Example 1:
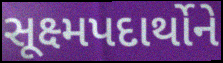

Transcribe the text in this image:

સૂક્ષ્મપદાર્થોને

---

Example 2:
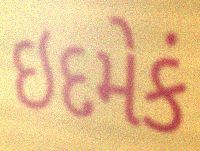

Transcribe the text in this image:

ઇદમેકં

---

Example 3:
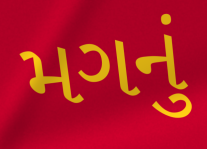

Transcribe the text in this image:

મગનું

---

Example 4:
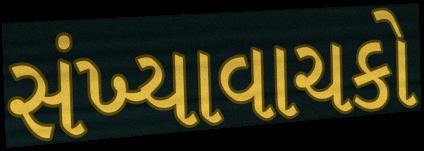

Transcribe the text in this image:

સંખ્યાવાચકો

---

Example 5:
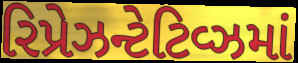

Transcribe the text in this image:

રિપ્રેઝન્ટેટિવ્ઝમાં